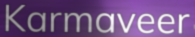
Karmaveer